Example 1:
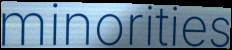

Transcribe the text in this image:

minorities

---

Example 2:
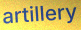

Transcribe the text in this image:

artillery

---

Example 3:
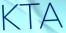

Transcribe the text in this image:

KTA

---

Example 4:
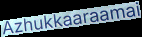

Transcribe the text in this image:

Azhukkaaraamai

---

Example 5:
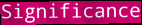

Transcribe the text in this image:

Significance